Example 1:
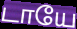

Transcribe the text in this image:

டாயே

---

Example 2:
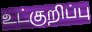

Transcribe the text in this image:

உட்குறிப்பு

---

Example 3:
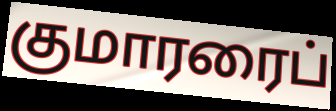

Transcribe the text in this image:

குமாரரைப்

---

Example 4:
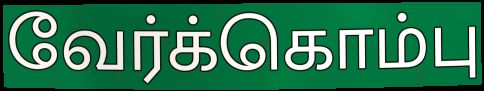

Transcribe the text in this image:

வேர்க்கொம்பு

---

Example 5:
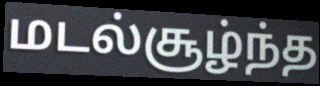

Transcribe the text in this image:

மடல்சூழ்ந்த